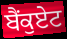
ਬੈਂਕੁਏਟ